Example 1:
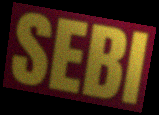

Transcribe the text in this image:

SEBI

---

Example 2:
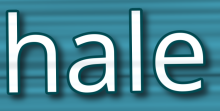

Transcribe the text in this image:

hale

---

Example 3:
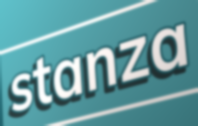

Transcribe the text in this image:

stanza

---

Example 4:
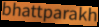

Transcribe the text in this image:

bhattparakh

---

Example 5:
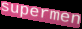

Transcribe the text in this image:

supermen